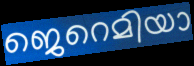
ജെറെമിയാ